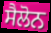
ਸੈਲੋਨ